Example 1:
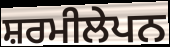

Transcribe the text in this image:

ਸ਼ਰਮੀਲੇਪਨ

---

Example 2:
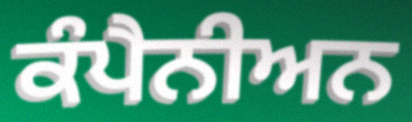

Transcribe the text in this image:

ਕੰਪੈਨੀਅਨ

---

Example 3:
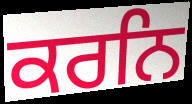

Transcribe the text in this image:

ਕਰਨਿ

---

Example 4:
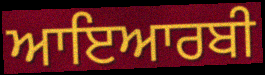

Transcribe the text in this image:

ਆਇਆਰਬੀ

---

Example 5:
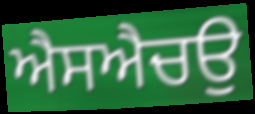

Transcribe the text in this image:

ਐਸਐਚਉ